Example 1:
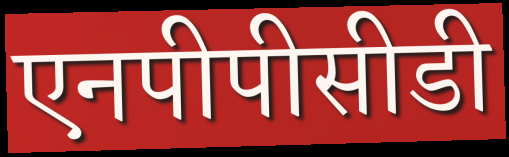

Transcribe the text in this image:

एनपीपीसीडी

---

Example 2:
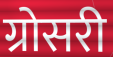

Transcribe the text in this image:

ग्रोसरी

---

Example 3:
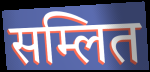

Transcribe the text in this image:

सम्लित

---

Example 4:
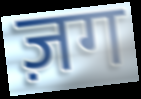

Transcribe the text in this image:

ज़ग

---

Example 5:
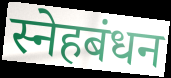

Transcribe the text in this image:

स्नेहबंधन